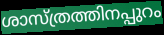
ശാസ്ത്രത്തിനപ്പുറം